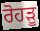
ਰੋਹੜੂ